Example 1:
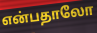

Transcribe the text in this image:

என்பதாலோ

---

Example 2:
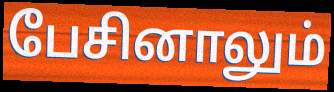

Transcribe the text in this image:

பேசினாலும்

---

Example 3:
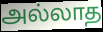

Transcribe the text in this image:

அல்லாத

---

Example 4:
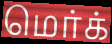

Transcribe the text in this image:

மெர்க்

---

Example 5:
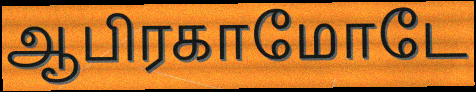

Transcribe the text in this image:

ஆபிரகாமோடே